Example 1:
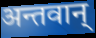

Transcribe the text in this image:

अन्तवान्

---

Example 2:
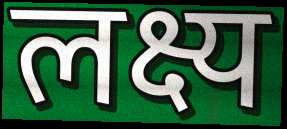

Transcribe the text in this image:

लक्ष्‍य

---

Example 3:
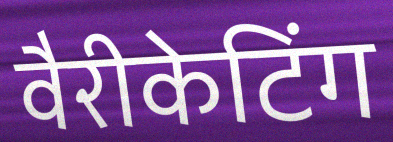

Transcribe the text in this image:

वैरीकेटिंग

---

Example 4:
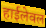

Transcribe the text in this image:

हाईलेवल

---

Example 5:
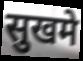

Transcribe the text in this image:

सुखमे